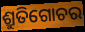
ଶ୍ରୁତିଗୋଚର